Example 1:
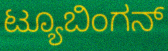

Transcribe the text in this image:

ಟ್ಯೂಬಿಂಗನ್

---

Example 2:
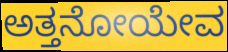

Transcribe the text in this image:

ಅತ್ತನೋಯೇವ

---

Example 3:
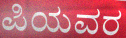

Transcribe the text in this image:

ಪಿಯವರ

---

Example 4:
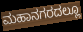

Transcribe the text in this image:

ಮಹಾನಗರದಲ್ಲೂ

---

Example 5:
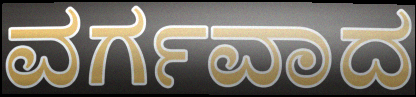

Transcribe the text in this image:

ವರ್ಗವಾದ